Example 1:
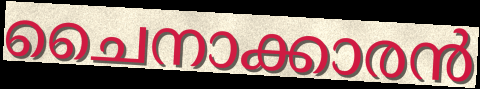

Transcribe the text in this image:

ചൈനാക്കാരൻ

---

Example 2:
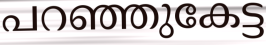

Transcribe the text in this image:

പറഞ്ഞുകേട്ട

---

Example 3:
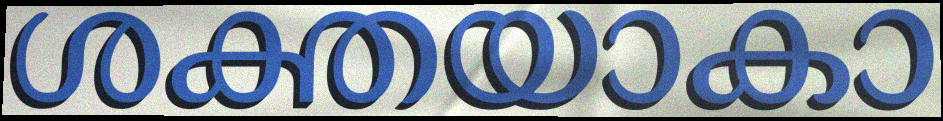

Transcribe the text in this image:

ശക്തയാകാ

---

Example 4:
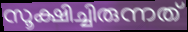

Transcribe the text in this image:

സൂക്ഷിച്ചിരുന്നത്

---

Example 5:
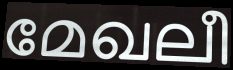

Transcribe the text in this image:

മേഖലീ